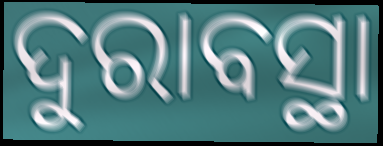
ଦୁରାବସ୍ଥା